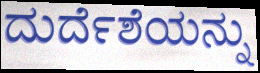
ದುರ್ದೆಶೆಯನ್ನು